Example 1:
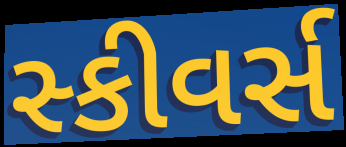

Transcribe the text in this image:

સ્કીવર્સ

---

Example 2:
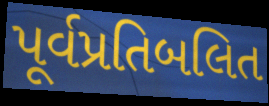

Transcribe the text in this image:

પૂર્વપ્રતિબલિત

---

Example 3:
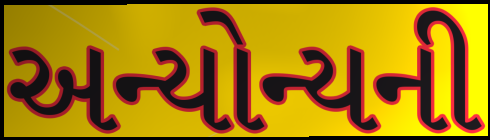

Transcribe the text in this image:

અન્યોન્યની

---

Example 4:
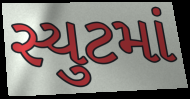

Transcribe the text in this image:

સ્યુટમાં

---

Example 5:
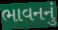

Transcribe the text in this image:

ભાવનનું